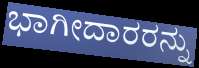
ಭಾಗೀದಾರರನ್ನು